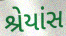
શ્રેયાંસ